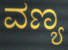
ವಣ್ಯ